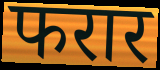
फरार